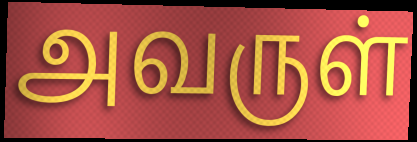
அவருள்